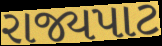
રાજ્યપાટ